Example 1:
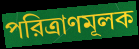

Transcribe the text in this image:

পরিত্রাণমূলক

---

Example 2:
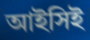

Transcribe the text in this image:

আইসিই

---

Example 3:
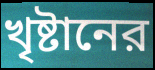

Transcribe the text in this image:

খৃষ্টানের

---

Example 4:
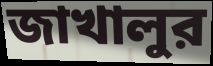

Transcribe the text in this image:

জাখালুর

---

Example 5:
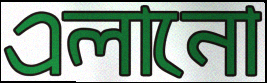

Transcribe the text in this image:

এলানো